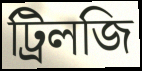
ট্রিলজি